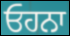
ਓਹਨਾ